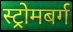
स्ट्रोमबर्ग